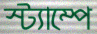
স্ট্যাম্পে